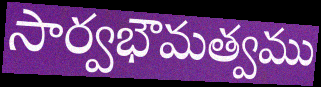
సార్వభౌమత్వము